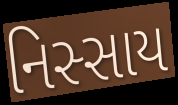
નિસ્સાય